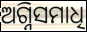
ଅଗ୍ନିସମାଧି